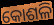
କୋଶଳି